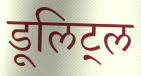
डूलिट्ल